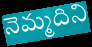
నెమ్మదిని